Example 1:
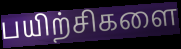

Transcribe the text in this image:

பயிற்சிகளை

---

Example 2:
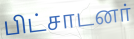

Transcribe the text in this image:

பிட்சாடனர்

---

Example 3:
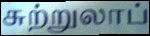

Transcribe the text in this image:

சுற்றுலாப்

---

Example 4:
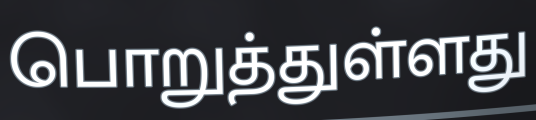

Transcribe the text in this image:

பொறுத்துள்ளது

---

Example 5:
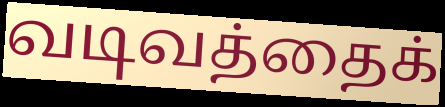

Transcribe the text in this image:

வடிவத்தைக்